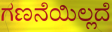
ಗಣನೆಯಿಲ್ಲದೆ